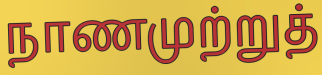
நாணமுற்றுத்